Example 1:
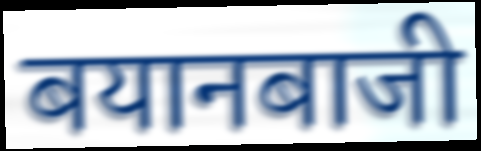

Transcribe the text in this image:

बयानबाजी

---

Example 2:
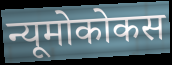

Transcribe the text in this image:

न्यूमोकोकस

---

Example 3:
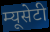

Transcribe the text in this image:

म्यूसेटी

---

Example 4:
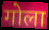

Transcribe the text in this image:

गोला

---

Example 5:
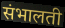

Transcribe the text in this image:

संभालती